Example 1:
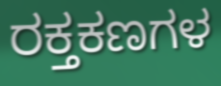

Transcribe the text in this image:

ರಕ್ತಕಣಗಳ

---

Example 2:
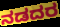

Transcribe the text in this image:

ನಡದರ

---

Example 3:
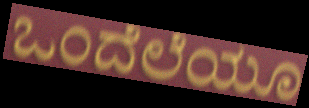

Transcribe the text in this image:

ಒಂದೆಲೆಯೂ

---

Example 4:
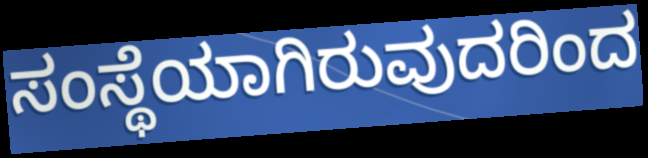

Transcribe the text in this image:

ಸಂಸ್ಥೆಯಾಗಿರುವುದರಿಂದ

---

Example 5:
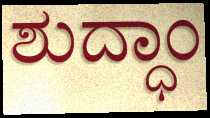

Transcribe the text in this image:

ಶುದ್ಧಾಂ